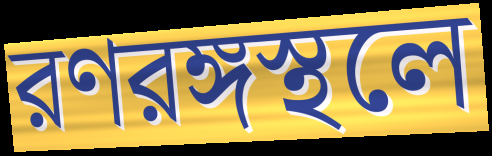
রণরঙ্গস্থলে